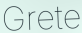
Grete